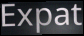
Expat